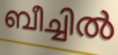
ബീച്ചിൽ